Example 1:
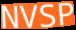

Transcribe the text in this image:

NVSP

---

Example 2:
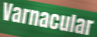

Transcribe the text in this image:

Varnacular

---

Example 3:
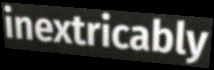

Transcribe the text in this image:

inextricably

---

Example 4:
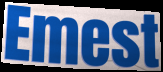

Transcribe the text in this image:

Emest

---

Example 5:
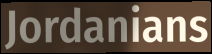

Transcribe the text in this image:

Jordanians